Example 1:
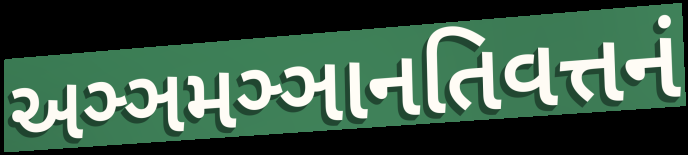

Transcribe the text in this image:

અઞ્ઞમઞ્ઞાનતિવત્તનં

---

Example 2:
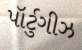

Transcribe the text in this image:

પૉર્ટુગીઝ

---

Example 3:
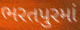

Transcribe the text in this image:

ભરતપુરમાં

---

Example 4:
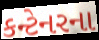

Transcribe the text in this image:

કન્ટેનરના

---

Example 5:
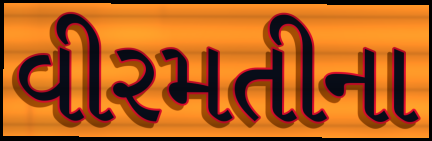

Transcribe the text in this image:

વીરમતીના